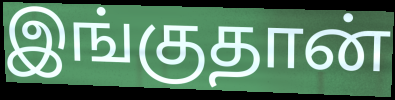
இங்குதான்